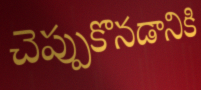
చెప్పుకొనడానికి